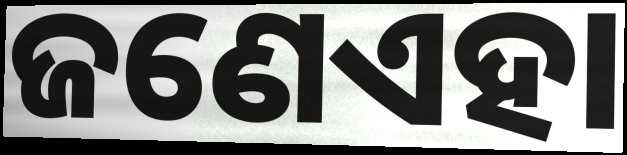
ଜଣେଏହା